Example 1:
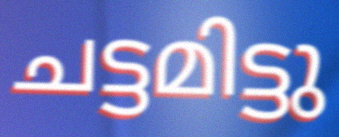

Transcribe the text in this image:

ചട്ടമിട്ടു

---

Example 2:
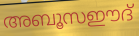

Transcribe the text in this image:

അബൂസഈദ്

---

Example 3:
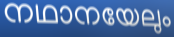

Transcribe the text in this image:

നഥാനയേലും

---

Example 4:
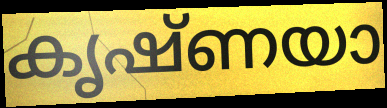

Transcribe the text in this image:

കൃഷ്ണയാ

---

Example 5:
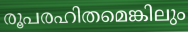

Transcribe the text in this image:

രൂപരഹിതമെങ്കിലും